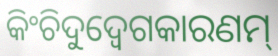
କିଂଚିଦୁଦ୍ବେଗକାରଣମ୍